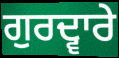
ਗੁਰਦ੍ਵਾਰੇ